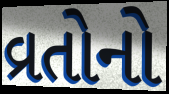
વ્રતોનો